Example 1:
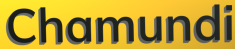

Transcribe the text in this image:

Chamundi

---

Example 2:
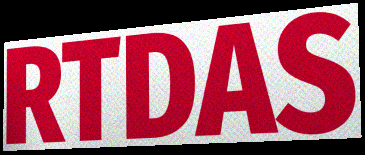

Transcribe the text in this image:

RTDAS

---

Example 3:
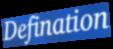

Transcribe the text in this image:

Defination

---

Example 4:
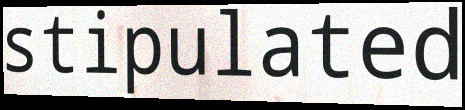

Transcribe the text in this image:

stipulated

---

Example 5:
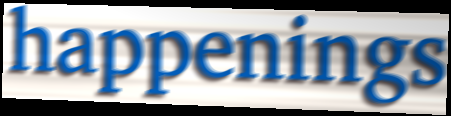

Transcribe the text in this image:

happenings